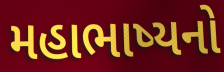
મહાભાષ્યનો